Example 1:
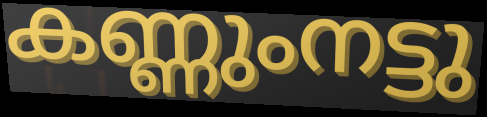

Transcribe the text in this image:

കണ്ണുംനട്ടു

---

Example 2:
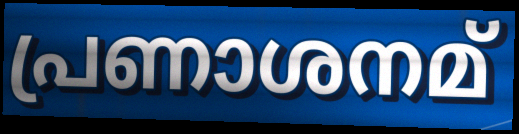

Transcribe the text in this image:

പ്രണാശനമ്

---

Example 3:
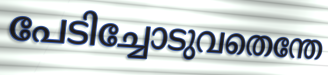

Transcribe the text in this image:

പേടിച്ചോടുവതെന്തേ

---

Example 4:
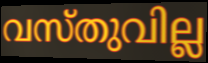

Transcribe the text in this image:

വസ്തുവില്ല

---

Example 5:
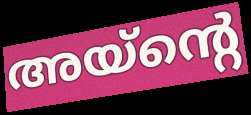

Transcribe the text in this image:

അയ്ന്റെ